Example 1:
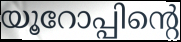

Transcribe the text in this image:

യൂറോപ്പിന്റെ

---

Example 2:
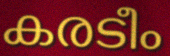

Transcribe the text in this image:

കരടീം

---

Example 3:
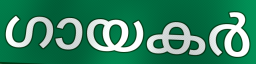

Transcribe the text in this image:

ഗായകർ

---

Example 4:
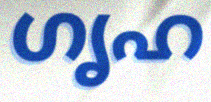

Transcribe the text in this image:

ഗൃഹ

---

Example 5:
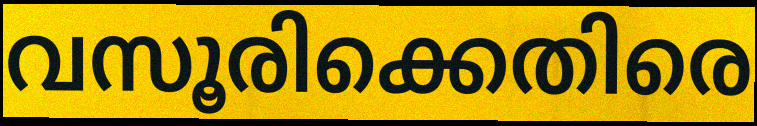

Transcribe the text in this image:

വസൂരിക്കെതിരെ